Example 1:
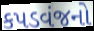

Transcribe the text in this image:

કપડવંજનો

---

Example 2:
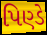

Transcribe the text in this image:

પિણ્ડે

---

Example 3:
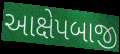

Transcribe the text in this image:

આક્ષેપબાજી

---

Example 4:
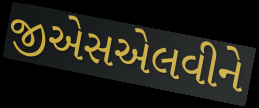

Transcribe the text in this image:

જીએસએલવીને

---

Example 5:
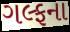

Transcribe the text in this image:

ગલ્ફના